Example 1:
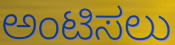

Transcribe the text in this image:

ಅಂಟಿಸಲು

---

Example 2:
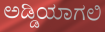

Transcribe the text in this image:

ಅಡ್ಡಿಯಾಗಲಿ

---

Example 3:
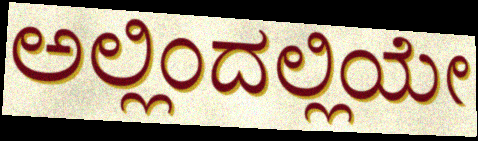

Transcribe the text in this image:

ಅಲ್ಲಿಂದಲ್ಲಿಯೇ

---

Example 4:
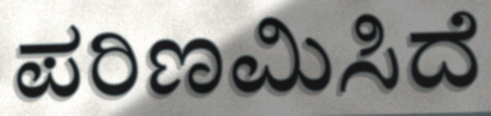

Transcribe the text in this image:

ಪರಿಣಮಿಸಿದೆ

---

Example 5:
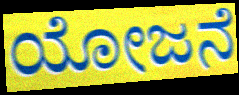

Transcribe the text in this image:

ಯೋಜನೆ